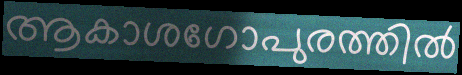
ആകാശഗോപുരത്തിൽ